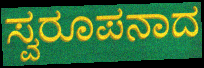
ಸ್ವರೂಪನಾದ